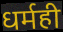
धर्मही